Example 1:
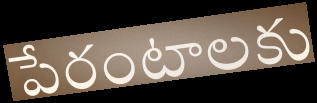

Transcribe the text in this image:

పేరంటాలకు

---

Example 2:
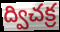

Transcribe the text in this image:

ద్విచక్ర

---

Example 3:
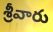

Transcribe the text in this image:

శ్రీవారు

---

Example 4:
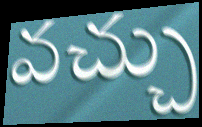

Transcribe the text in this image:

వచ్చు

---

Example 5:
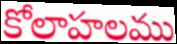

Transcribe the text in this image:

కోలాహలము